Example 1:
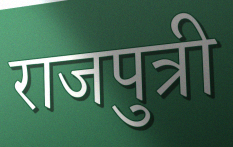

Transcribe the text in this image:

राजपुत्री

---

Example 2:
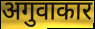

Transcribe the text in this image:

अगुवाकार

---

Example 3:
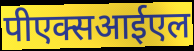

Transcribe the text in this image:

पीएक्सआईएल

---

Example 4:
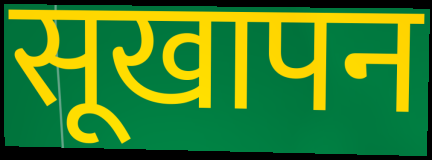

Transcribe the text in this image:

सूखापन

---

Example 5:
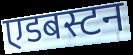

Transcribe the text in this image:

एडबस्टन